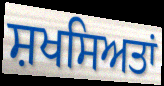
ਸ਼ਖਸਿਅਤਾਂ